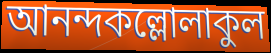
আনন্দকল্লোলাকুল